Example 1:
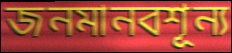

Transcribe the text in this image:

জনমানবশূন্য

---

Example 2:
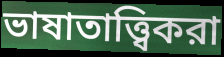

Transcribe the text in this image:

ভাষাতাত্ত্বিকরা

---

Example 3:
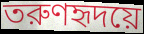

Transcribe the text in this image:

তরুণহৃদয়ে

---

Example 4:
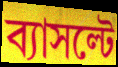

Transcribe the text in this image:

ব্যাসল্টে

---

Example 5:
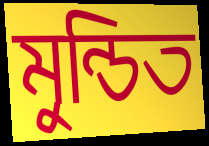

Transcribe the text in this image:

মুন্ডিত